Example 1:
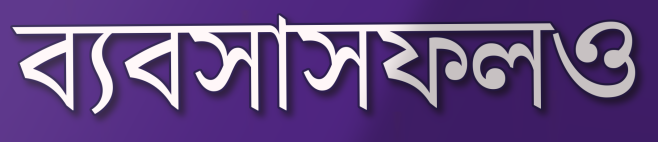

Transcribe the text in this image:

ব্যবসাসফলও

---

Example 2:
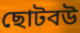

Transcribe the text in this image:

ছোটবউ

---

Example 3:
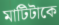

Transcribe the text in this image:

মাটিটাকে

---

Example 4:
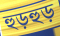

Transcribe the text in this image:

হুড়হুড়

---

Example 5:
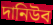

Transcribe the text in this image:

দানিউব